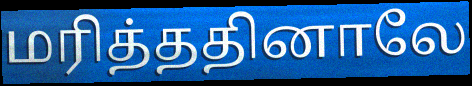
மரித்ததினாலே